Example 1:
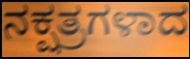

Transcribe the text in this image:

ನಕ್ಷತ್ರಗಳಾದ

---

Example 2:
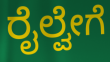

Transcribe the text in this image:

ರೈಲ್ವೇಗೆ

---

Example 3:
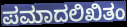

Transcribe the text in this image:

ಪಮಾದಲಿಖಿತಂ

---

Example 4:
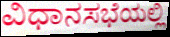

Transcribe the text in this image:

ವಿಧಾನಸಭೆಯಲ್ಲಿ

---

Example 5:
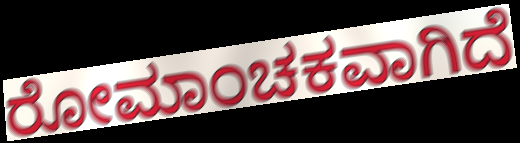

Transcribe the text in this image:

ರೋಮಾಂಚಕವಾಗಿದೆ